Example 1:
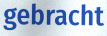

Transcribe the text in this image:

gebracht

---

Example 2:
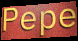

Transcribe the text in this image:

Pepe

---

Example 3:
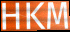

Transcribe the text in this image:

HKM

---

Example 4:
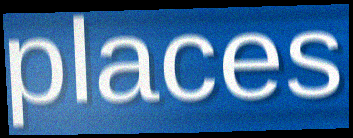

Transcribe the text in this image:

places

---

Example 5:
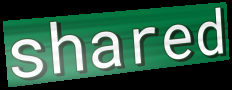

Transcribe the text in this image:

shared